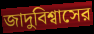
জাদুবিশ্বাসের